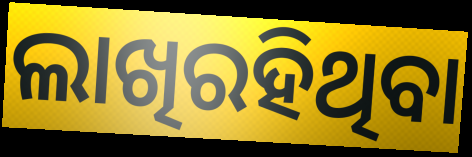
ଲାଖିରହିଥିବା